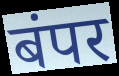
बंपर